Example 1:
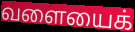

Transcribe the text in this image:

வளையைக்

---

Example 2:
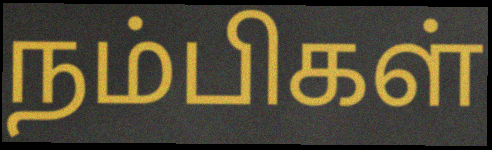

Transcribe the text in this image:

நம்பிகள்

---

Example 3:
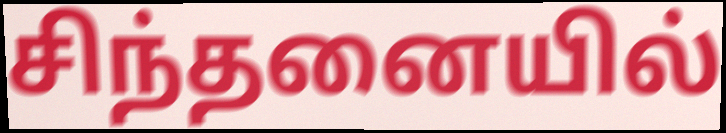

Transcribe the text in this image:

சிந்தனையில்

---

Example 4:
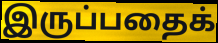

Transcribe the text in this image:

இருப்பதைக்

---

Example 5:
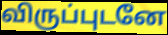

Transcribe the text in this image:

விருப்புடனே